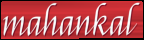
mahankal